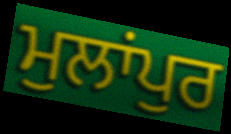
ਮੁਲਾਂਪੁਰ